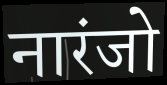
नारंजो